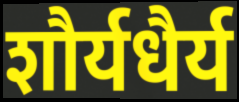
शौर्यधैर्य